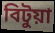
বিটুয়া